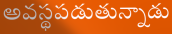
అవస్థపడుతున్నాడు